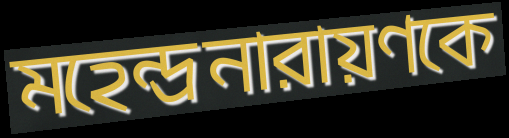
মহেন্দ্রনারায়ণকে